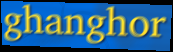
ghanghor